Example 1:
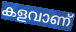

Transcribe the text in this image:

കളവാണ്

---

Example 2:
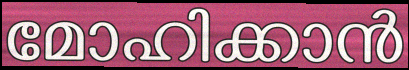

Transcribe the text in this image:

മോഹിക്കാൻ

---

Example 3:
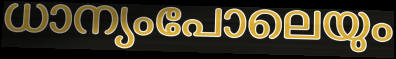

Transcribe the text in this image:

ധാന്യംപോലെയും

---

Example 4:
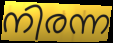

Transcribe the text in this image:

നിരന്ന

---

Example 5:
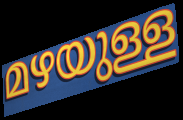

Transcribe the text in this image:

മഴയുള്ള